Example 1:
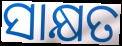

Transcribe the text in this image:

ସାକ୍ଷତ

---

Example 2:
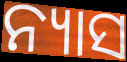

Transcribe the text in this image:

ନ୍ୟାସ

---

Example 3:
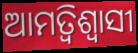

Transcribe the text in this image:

ଆମତ୍ବିଶ୍ୱାସୀ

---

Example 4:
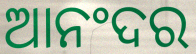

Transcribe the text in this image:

ଆନଂଦର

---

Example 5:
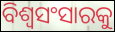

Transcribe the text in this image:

ବିଶ୍ୱସଂସାରକୁ